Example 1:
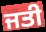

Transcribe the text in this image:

ਜਤੀ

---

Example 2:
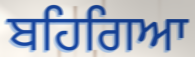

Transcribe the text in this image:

ਬਹਿਗਿਆ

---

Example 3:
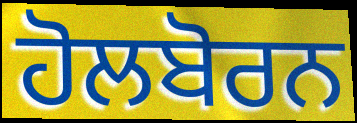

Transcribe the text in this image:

ਹੋਲਬੋਰਨ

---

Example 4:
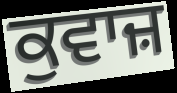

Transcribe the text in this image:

ਕੁਵਾਜ਼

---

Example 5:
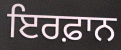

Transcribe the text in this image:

ਇਰਫ਼ਾਨ